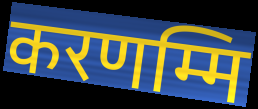
करणम्मि